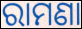
ରାମଣା